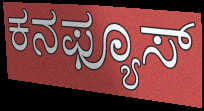
ಕನಫ್ಯೂಸ್